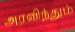
அரவிந்தும்